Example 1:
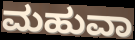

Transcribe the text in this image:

ಮಹುವಾ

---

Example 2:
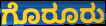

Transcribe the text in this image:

ಗೊರೂರು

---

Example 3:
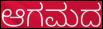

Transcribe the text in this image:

ಆಗಮದ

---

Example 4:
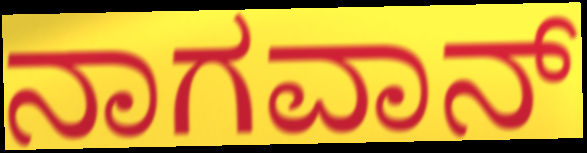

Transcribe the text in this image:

ನಾಗವಾನ್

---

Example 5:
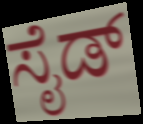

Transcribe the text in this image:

ಸೈಡ್